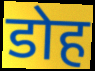
डोह